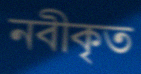
নবীকৃত